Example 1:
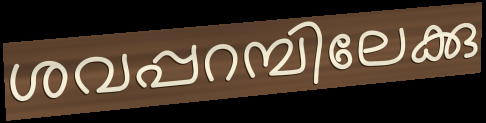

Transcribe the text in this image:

ശവപ്പറമ്പിലേക്കു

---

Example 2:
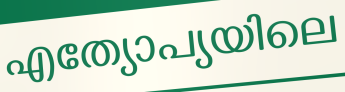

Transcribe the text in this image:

എത്യോപ്യയിലെ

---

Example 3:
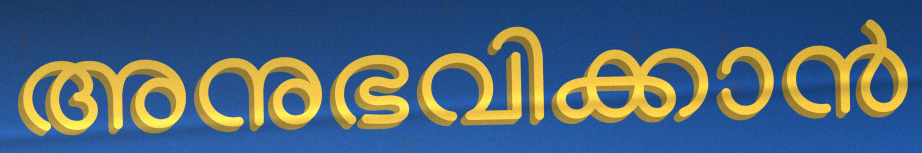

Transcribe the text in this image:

അനുഭവിക്കാൻ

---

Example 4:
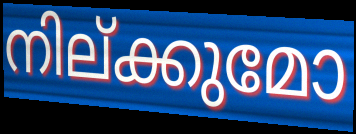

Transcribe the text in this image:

നില്ക്കുമോ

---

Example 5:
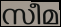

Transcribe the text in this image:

സീമ